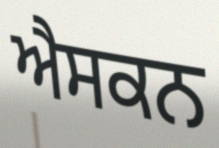
ਐਸਕਨ